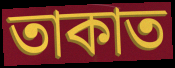
তাকাত